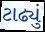
ટાઢ્યું